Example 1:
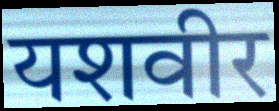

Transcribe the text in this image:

यशवीर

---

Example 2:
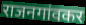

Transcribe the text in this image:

राजनगांवकर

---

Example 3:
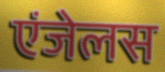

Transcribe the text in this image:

एंजेलस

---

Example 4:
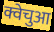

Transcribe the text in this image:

क्वेचुआ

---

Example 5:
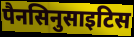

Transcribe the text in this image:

पैनसिनुसाइटिस